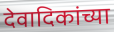
देवादिकांच्या